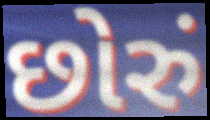
છોરું